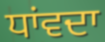
ਧਾਂਵਦਾ